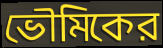
ভৌমিকের